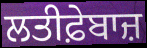
ਲਤੀਫ਼ੇਬਾਜ਼